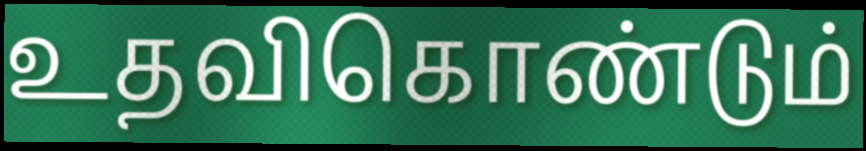
உதவிகொண்டும்